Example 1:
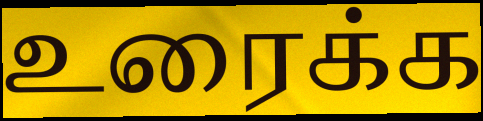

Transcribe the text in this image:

உரைக்க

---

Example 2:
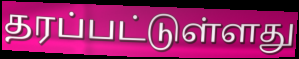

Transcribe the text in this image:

தரப்பட்டுள்ளது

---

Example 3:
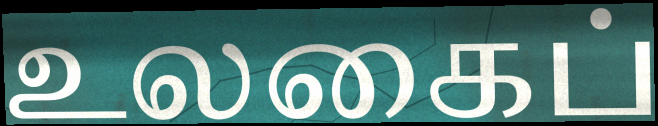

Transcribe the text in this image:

உலகைப்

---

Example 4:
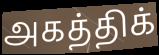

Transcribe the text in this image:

அகத்திக்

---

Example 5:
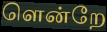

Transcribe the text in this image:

ளென்றே